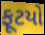
ફૂટયો